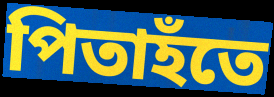
পিতাহঁতে